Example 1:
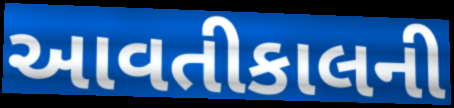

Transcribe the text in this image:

આવતીકાલની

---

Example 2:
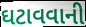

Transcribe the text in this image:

ઘટાવવાની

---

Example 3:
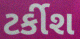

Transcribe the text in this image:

ટર્કીશ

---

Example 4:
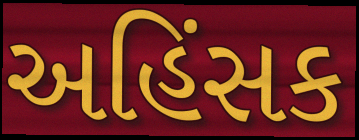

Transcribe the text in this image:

અહિંસક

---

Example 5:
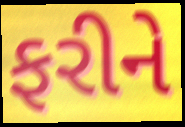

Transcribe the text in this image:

ફરીને